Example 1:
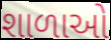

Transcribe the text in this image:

શાળાઓ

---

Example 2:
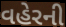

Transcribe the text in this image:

વહેરની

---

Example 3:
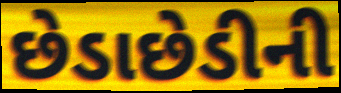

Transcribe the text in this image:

છેડાછેડીની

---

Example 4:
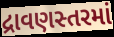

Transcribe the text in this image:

દ્રાવણસ્તરમાં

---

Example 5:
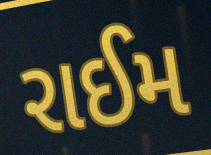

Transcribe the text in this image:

રાઈમ